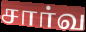
சார்வ